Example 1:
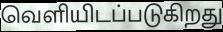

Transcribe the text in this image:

வெளியிடப்படுகிறது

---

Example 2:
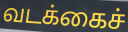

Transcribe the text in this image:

வடக்கைச்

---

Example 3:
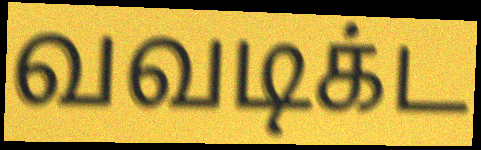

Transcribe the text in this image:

வவடிக்ட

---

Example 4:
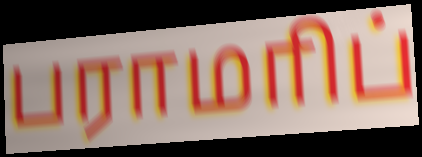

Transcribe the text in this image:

பராமரிப்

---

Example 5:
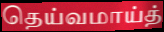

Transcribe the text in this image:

தெய்வமாய்த்